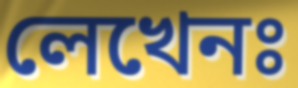
লেখেনঃ